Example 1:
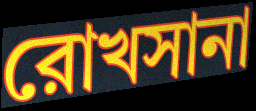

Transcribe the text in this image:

রোখসানা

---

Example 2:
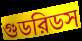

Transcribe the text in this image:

গুডরিডস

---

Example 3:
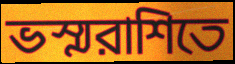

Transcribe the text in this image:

ভস্মরাশিতে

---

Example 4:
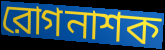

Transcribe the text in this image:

রোগনাশক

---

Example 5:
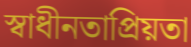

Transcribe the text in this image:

স্বাধীনতাপ্রিয়তা